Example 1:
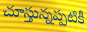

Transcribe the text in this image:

చూస్తున్నప్పటికీ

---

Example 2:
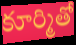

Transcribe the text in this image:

కూర్మితో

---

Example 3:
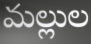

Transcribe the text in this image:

మల్లుల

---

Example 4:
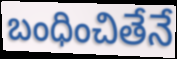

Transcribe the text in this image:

బంధించితేనే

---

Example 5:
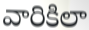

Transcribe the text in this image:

వారికిలా